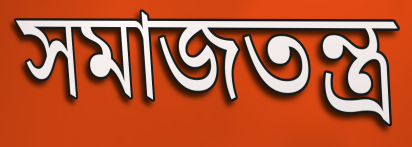
সমাজতন্ত্ৰ